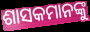
ଶାସକମାନଙ୍କୁ